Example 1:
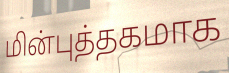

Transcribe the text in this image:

மின்புத்தகமாக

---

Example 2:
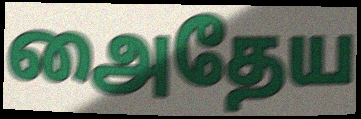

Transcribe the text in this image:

அைதேய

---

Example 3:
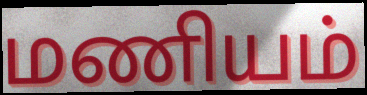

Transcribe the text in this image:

மணியம்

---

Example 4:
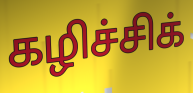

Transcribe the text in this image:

கழிச்சிக்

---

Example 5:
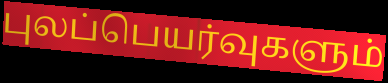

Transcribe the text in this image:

புலப்பெயர்வுகளும்